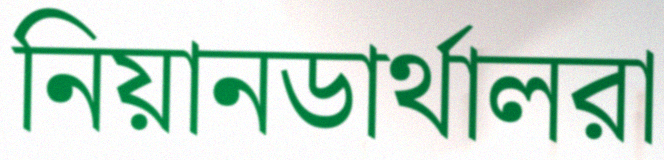
নিয়ানডার্থালরা